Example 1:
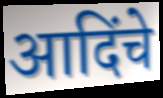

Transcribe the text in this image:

आदिंचे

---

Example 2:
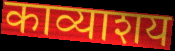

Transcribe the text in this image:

काव्याशय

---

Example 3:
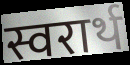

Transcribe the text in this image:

स्वरार्थ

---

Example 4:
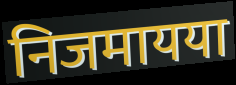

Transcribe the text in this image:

निजमायया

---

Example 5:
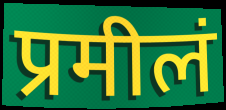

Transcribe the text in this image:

प्रमीलं